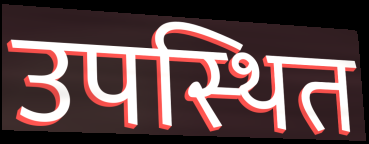
उपस्थित